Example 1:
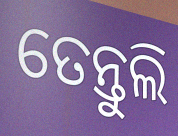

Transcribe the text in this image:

ତେନ୍ତୁଲି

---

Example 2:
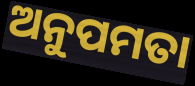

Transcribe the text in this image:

ଅନୁପମତା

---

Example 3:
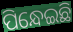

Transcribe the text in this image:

ପିନ୍ଧେଇଛି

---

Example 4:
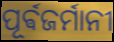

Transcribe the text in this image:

ପୂର୍ଵଜର୍ମାନୀ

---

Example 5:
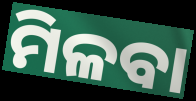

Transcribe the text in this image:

ମିଳବା